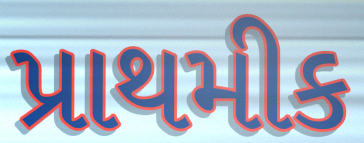
પ્રાથમીક